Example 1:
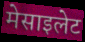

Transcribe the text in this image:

मेसाइलेट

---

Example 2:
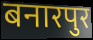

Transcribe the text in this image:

बनारपुर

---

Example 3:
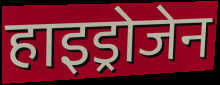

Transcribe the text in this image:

हाइड्रोजेन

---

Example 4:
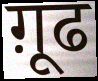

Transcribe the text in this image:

ग़ूढ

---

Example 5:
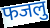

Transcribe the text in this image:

फजलु